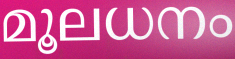
മൂലധനം